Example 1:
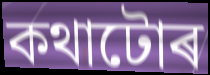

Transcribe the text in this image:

কথাটোৰ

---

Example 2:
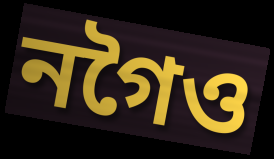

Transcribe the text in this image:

নগৈও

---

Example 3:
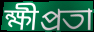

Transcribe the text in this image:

ক্ষীপ্ৰতা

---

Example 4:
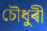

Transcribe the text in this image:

চৌধুৰী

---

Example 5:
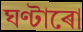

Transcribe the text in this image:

ঘণ্টাৰো